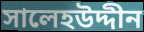
সালেহউদ্দীন